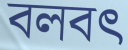
বলবৎ